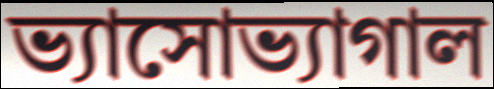
ভ্যাসোভ্যাগাল